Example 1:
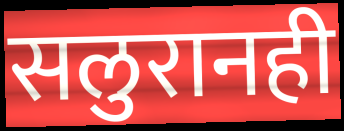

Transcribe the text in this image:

सलुरानही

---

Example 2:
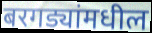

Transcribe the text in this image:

बरगड्यांमधील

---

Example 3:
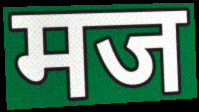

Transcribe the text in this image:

मज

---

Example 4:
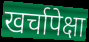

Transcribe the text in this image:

खर्चापेक्षा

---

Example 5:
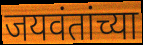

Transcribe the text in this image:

जयवंतांच्या